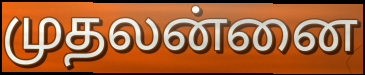
முதலன்னை